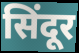
सिंदूर